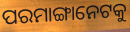
ପରମାଙ୍ଗାନେଟକୁ